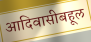
आदिवासीबहूल